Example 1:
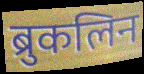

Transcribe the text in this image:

ब्रुकलिन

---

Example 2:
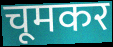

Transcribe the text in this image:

चूमकर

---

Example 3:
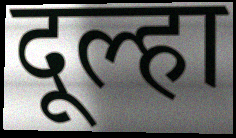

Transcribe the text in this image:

दूल्हा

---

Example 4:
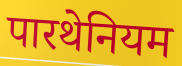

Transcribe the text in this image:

पारथेनियम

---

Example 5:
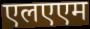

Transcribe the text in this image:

एलएएम